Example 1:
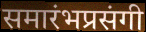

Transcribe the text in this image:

समारंभप्रसंगी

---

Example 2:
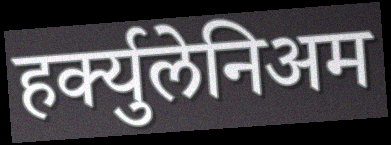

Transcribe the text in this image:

हर्क्युलेनिअम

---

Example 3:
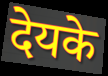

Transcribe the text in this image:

देयके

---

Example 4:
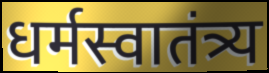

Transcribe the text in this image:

धर्मस्वातंत्र्य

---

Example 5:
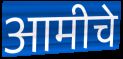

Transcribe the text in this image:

आमीचे